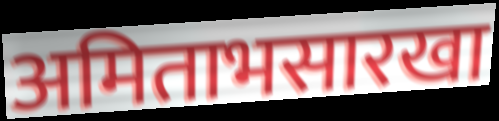
अमिताभसारखा